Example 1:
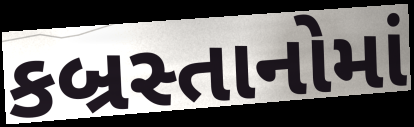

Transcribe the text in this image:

કબ્રસ્તાનોમાં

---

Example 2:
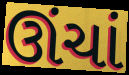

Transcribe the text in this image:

ઊંચાં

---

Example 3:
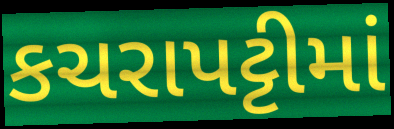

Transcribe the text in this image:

કચરાપટ્ટીમાં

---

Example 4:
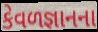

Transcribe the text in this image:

કેવળજ્ઞાનના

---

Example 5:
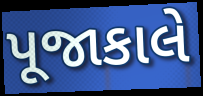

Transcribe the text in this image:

પૂજાકાલે